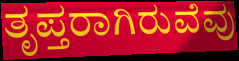
ತೃಪ್ತರಾಗಿರುವೆವು